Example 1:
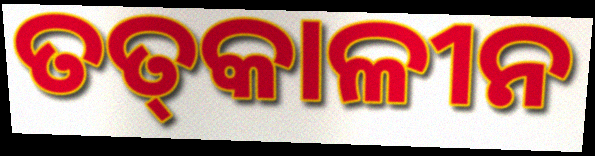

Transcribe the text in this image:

ତତ୍‌କାଳୀନ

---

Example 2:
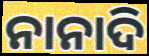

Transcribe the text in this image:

ନାନାଦି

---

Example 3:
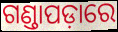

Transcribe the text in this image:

ଗଣ୍ଡାପଡ଼ାରେ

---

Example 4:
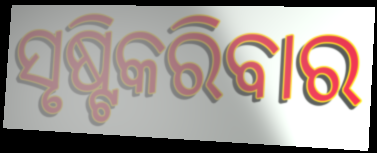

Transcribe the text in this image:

ସୃଷ୍ଟିକରିବାର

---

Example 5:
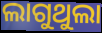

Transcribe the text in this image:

ଲାଗୁଥୁଲା